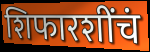
शिफारशींचं